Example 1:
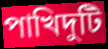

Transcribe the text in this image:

পাখিদুটি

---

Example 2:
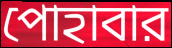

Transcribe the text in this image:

পোহাবার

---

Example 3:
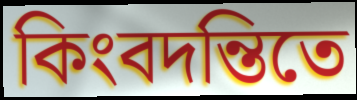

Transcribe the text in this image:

কিংবদন্তিতে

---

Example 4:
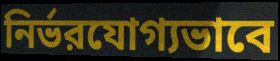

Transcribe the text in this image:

নির্ভরযোগ্যভাবে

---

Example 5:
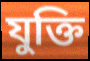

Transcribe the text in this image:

যুক্তি